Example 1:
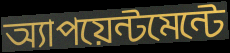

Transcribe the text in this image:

অ্যাপয়েন্টমেন্টে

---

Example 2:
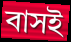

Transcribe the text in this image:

বাসই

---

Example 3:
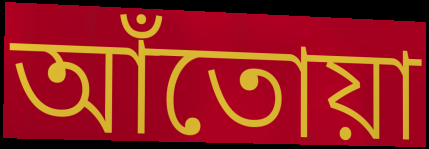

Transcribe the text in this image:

আঁতোয়া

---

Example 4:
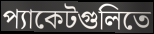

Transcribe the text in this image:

প্যাকেটগুলিতে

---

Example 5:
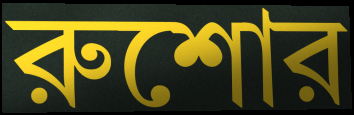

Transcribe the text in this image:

রুশোর